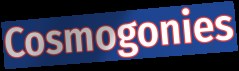
Cosmogonies